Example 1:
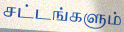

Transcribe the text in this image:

சட்டங்களும்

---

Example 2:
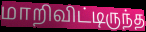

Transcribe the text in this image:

மாறிவிட்டிருந்த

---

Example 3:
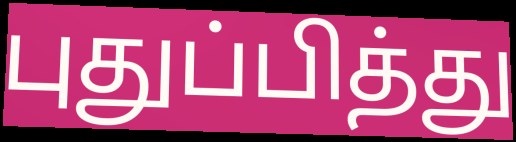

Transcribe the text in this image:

புதுப்பித்து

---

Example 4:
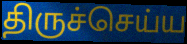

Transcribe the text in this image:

திருச்செய்ய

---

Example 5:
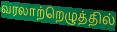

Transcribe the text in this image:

வரலாற்றெழுத்தில்